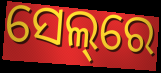
ସେଲ୍‌ରେ